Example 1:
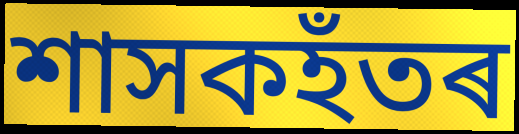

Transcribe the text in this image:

শাসকহঁতৰ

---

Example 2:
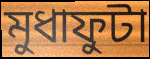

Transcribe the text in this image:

মুধাফুটা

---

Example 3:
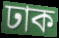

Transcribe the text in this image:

ঢাক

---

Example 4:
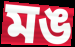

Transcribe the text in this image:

মঙ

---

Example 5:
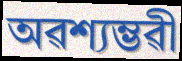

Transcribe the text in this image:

অৱশ্যম্ভৱী